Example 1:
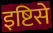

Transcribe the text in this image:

इष्टिसे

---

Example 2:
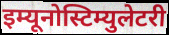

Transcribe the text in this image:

इम्यूनोस्टिम्युलेटरी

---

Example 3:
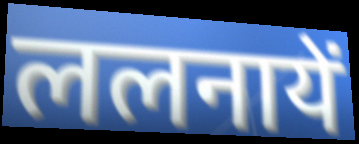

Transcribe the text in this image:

ललनायें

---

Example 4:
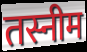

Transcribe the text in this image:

तस्नीम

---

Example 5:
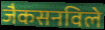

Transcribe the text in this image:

जैकसनविले